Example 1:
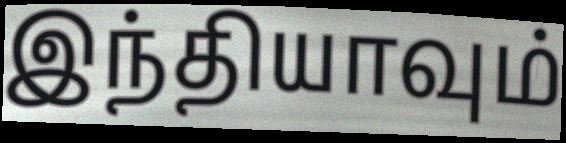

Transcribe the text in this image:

இந்தியாவும்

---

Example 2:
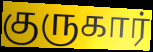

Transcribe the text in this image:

குருகார்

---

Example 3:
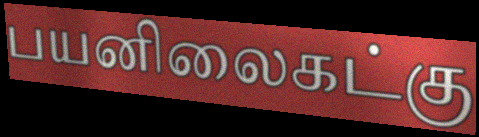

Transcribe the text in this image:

பயனிலைகட்கு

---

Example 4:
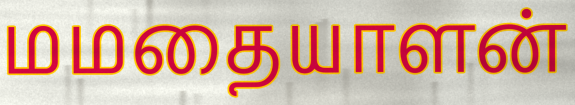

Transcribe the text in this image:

மமதையாளன்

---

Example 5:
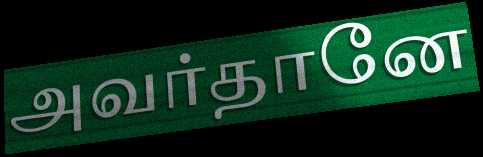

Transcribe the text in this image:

அவர்தானே